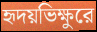
হৃদয়ভিক্ষুরে